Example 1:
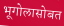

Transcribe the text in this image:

भूगोलासोबत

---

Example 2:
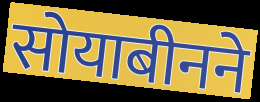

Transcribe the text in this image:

सोयाबीनने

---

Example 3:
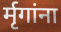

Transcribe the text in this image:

र्मृगांना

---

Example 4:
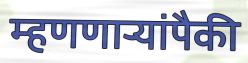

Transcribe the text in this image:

म्हणणाऱ्यांपैकी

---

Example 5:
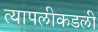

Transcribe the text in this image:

त्यापलीकडली